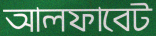
আলফাবেট